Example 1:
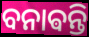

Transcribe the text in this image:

ବନାଵନ୍ତି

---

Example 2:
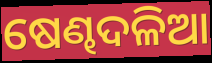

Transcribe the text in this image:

ଷେଣ୍ଢଦଳିଆ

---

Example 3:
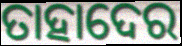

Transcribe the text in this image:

ତାହାଦେର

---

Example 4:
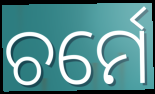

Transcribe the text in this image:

ଚର୍ମେ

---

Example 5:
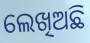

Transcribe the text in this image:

ଲେଖିଅଛି